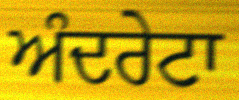
ਅੰਦਰੇਟਾ